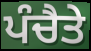
ਪੰਚੈਤੇ